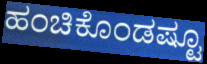
ಹಂಚಿಕೊಂಡಷ್ಟೂ